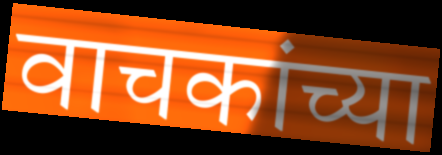
वाचकांच्या